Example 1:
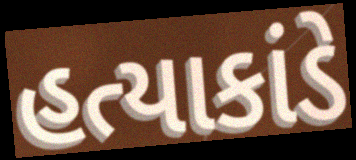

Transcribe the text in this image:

હત્યાકાંડે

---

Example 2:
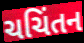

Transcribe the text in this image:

ચચિંતન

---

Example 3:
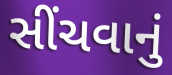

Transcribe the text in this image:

સીંચવાનું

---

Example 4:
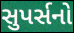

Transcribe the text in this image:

સુપર્સનો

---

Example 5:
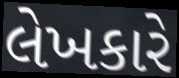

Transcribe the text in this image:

લેખકારે